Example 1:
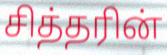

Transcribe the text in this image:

சித்தரின்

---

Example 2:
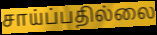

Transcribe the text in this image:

சாய்ப்பதில்லை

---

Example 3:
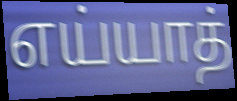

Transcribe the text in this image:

எய்யாத்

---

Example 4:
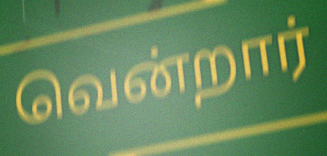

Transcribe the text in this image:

வென்றார்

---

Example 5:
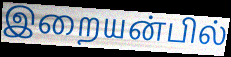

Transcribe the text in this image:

இறையன்பில்